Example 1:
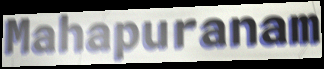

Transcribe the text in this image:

Mahapuranam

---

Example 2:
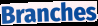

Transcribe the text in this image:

Branches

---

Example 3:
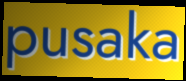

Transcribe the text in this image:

pusaka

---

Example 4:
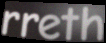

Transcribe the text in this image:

rreth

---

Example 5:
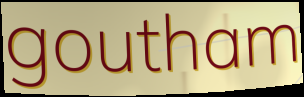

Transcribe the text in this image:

goutham